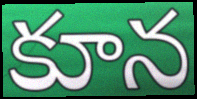
కూన